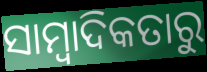
ସାମ୍ବାଦିକତାରୁ